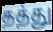
தத்து